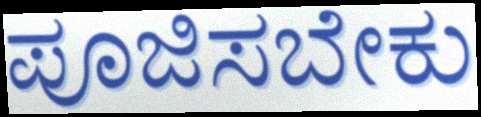
ಪೂಜಿಸಬೇಕು